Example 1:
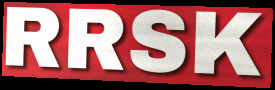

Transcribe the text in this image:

RRSK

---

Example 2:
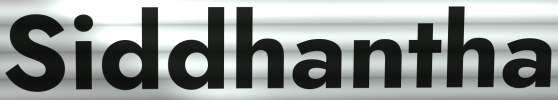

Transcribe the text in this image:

Siddhantha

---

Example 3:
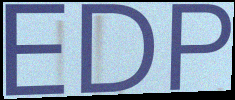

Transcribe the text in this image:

EDP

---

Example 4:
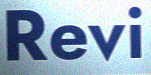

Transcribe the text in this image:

Revi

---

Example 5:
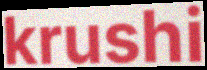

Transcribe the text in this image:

krushi